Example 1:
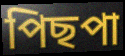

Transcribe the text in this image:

পিছপা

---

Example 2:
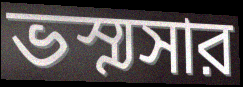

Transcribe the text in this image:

ভস্মসার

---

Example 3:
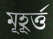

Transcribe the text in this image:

মূহূর্ত্ত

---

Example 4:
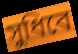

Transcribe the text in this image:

সুধিবে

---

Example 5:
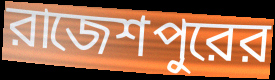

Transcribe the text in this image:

রাজেশপুরের